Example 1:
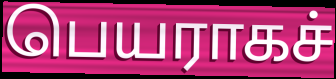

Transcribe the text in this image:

பெயராகச்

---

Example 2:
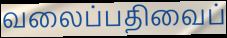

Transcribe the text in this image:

வலைப்பதிவைப்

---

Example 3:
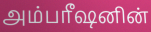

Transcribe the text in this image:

அம்பரீஷனின்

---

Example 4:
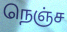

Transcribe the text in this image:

நெஞ்ச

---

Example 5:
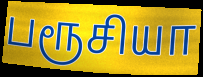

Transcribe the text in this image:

பரூசியா